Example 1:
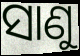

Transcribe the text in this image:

ସାଣୁ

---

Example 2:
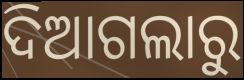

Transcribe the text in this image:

ଦିଆଗଲାରୁ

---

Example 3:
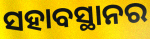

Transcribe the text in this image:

ସହାବସ୍ଥାନର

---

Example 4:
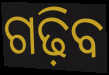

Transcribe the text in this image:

ଗଢ଼ିବ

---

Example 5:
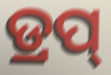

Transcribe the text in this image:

ଡ୍ରପ୍